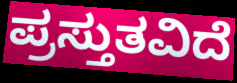
ಪ್ರಸ್ತುತವಿದೆ